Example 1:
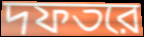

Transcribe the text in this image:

দফতরে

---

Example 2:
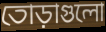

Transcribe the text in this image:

তোড়াগুলো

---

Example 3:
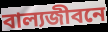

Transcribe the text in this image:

বাল্যজীবনে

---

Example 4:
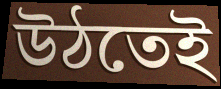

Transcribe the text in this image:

উঠতেই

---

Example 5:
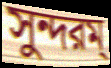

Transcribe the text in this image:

সুন্দরম্